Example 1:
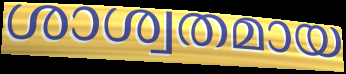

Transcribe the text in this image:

ശാശ്വതമായ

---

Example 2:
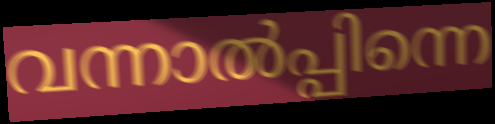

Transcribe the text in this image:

വന്നാൽപ്പിന്നെ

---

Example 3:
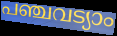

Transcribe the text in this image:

പഞ്ചവട്യാം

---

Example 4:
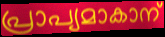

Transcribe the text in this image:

പ്രാപ്യമാകാന്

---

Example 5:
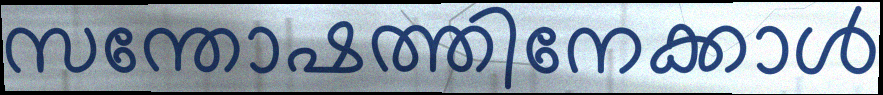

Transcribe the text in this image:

സന്തോഷത്തിനേക്കാൾ